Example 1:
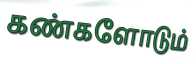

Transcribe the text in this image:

கண்களோடும்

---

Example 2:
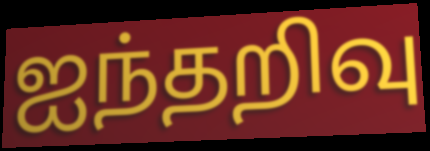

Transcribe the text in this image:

ஐந்தறிவு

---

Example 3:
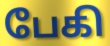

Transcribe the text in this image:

பேகி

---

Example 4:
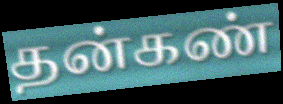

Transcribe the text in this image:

தன்கண்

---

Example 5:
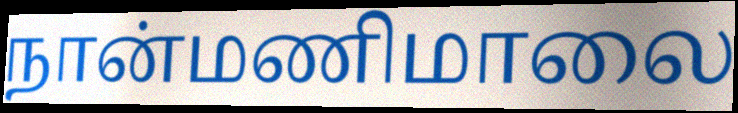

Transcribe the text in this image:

நான்மணிமாலை